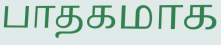
பாதகமாக